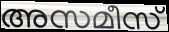
അസമീസ്